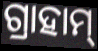
ଗ୍ରାହାମ୍